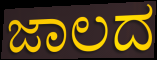
ಜಾಲದ